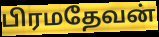
பிரமதேவன்